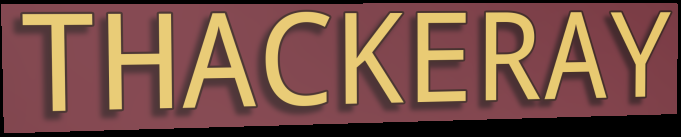
THACKERAY